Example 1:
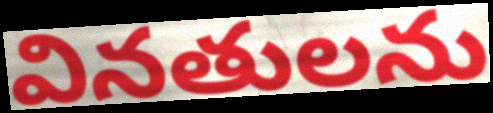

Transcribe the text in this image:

వినతులను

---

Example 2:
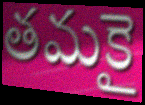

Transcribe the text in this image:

తమకై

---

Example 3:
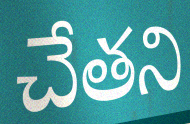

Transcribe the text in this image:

చేతని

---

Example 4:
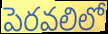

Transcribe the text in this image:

పెరవలిలో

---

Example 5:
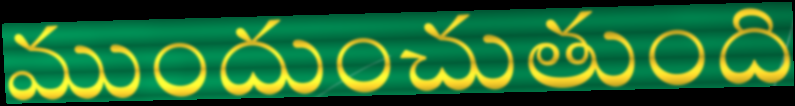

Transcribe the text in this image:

ముందుంచుతుంది